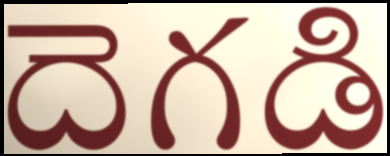
దెగడి